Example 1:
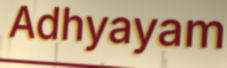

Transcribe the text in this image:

Adhyayam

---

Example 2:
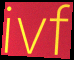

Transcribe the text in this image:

ivf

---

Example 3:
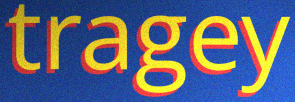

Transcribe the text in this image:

tragey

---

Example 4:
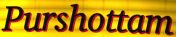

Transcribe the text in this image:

Purshottam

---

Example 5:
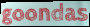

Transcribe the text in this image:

goondas